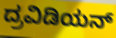
ದ್ರವಿಡಿಯನ್